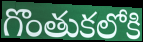
గొంతుకలోకి